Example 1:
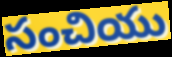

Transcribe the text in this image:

సంచియు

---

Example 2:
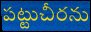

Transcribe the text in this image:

పట్టుచీరను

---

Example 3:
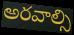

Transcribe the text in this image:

అరవాల్సి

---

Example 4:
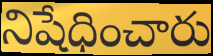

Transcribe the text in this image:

నిషేధించారు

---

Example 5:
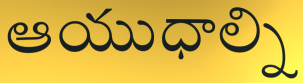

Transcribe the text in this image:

ఆయుధాల్ని